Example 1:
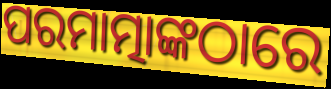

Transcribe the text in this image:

ପରମାତ୍ମାଙ୍କଠାରେ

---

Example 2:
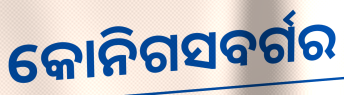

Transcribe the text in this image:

କୋନିଗସବର୍ଗର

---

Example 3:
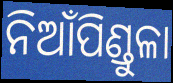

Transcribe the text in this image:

ନିଆଁପିଣ୍ଡୁଳା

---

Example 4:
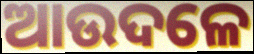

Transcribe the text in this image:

ଆଉଦଳେ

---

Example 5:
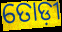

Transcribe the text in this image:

ତୋଡ଼ୀ